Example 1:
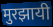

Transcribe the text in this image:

मुरझायी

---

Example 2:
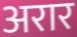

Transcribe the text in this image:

अरार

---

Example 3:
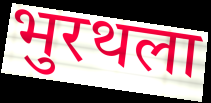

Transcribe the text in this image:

भुरथला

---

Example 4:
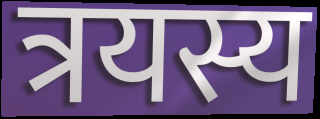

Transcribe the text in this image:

त्रयस्य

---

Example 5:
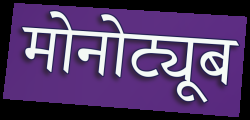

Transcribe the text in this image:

मोनोट्यूब